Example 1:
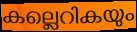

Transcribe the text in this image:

കല്ലെറികയും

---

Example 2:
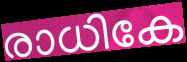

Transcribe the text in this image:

രാധികേ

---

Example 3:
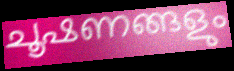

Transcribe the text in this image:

ചൂഷണങ്ങളും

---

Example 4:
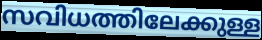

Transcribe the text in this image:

സവിധത്തിലേക്കുള്ള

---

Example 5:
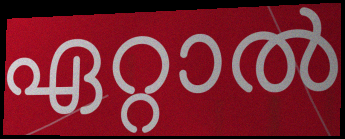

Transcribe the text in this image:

ഏറ്റാൽ